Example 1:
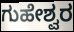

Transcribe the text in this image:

ಗುಹೇಶ್ವರ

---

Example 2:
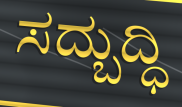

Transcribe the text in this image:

ಸದ್ಬುದ್ಧಿ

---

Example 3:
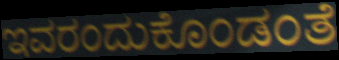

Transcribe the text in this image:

ಇವರಂದುಕೊಂಡಂತೆ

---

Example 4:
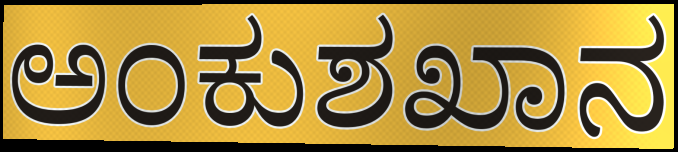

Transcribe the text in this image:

ಅಂಕುಶಖಾನ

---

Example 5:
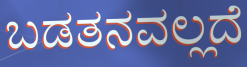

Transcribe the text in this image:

ಬಡತನವಲ್ಲದೆ